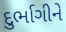
દુર્ભાગીને